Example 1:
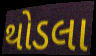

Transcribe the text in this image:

થોડલા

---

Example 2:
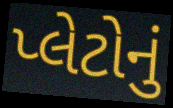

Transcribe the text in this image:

પ્લેટોનું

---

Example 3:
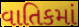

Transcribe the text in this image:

વાતિકમાં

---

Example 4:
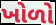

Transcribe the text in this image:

ખોળો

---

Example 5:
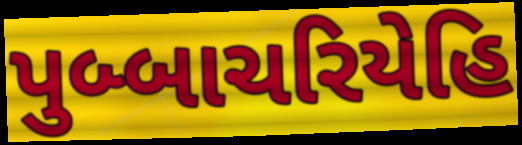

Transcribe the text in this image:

પુબ્બાચરિયેહિ